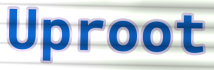
Uproot